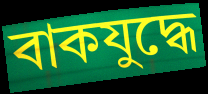
বাকযুদ্ধে